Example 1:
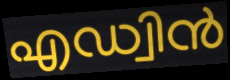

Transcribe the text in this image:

എഡ്വിൻ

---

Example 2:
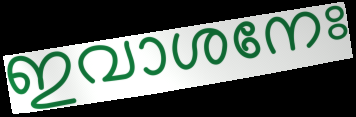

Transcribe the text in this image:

ഇവാശനേഃ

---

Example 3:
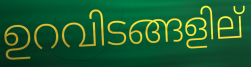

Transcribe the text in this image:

ഉറവിടങ്ങളില്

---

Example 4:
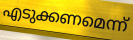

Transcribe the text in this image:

എടുക്കണമെന്ന്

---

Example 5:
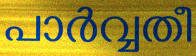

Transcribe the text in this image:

പാർവ്വതീ